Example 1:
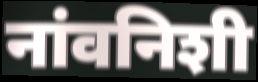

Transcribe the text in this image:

नांवनिशी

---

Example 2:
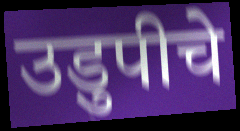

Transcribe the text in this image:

उडुपीचे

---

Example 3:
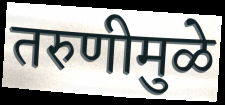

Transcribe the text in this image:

तरुणीमुळे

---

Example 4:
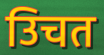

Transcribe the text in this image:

उिचत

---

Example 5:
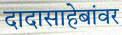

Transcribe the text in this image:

दादासाहेबांवर